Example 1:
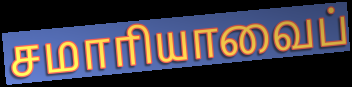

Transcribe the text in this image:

சமாரியாவைப்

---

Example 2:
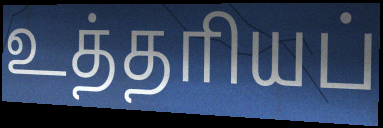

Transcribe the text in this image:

உத்தரியப்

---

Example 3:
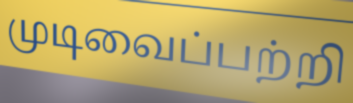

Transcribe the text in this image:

முடிவைப்பற்றி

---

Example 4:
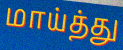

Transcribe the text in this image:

மாய்த்து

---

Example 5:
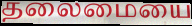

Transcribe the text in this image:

தலைமையை